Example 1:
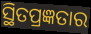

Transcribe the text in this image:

ସ୍ଥିତପ୍ରଜ୍ଞତାର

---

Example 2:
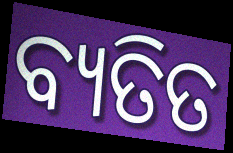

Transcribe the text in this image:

ବ୍ୟତିତ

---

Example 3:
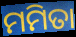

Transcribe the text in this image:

ମମିତା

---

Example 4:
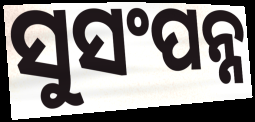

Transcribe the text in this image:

ସୁସଂପନ୍ନ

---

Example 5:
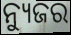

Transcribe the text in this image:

ନ୍ୟୁଜର